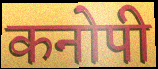
कनोपी